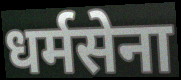
धर्मसेना